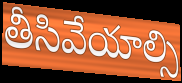
తీసివేయాల్సి